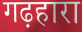
गढ़हारा